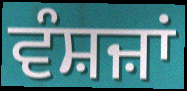
ਵੰਸ਼ਜ਼ਾਂ